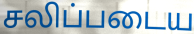
சலிப்படைய